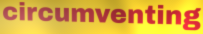
circumventing